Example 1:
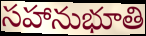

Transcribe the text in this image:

సహానుభూతి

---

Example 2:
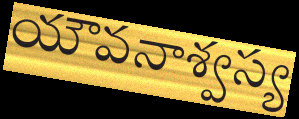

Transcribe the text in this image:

యౌవనాశ్వస్య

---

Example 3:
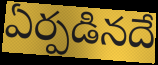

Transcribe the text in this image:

ఏర్పడినదే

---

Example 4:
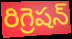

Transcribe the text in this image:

రిగ్రెషన్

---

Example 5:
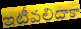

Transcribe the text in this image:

ఇటీవలిదాకా